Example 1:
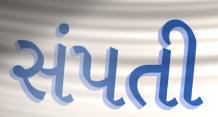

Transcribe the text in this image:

સંપતી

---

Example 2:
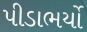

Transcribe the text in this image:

પીડાભર્યો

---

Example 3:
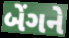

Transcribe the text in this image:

બેંગને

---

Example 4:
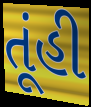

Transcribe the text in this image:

તૂંહી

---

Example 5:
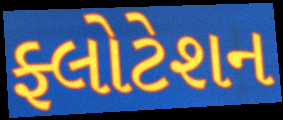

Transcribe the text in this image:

ફ્લોટેશન